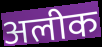
अलीक